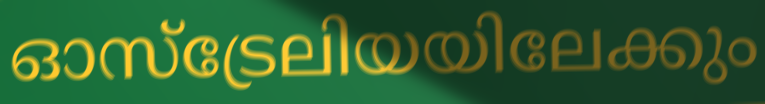
ഓസ്ട്രേലിയയിലേക്കും